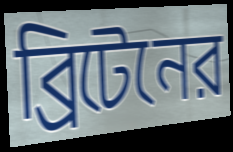
ব্রিটেনের